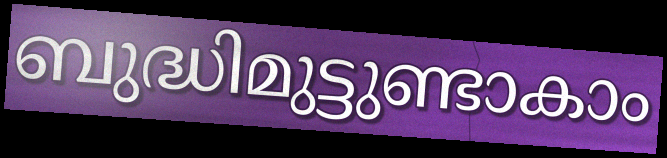
ബുദ്ധിമുട്ടുണ്ടാകാം